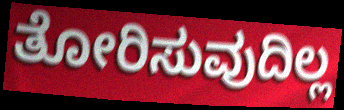
ತೋರಿಸುವುದಿಲ್ಲ